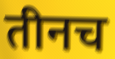
तीनच